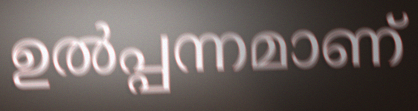
ഉൽപ്പന്നമാണ്